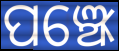
ପଞ୍ଝେ